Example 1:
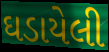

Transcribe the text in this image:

ઘડાયેલી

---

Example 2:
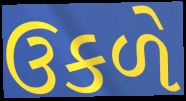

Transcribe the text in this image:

ઉકળે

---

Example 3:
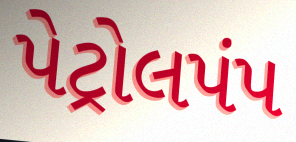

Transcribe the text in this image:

પેટ્રોલપંપ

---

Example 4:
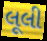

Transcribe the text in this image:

લૂલી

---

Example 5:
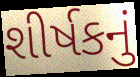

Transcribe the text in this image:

શીર્ષકનું